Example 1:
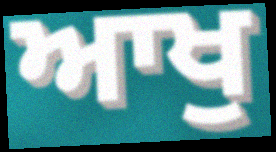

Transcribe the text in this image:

ਆਖੁ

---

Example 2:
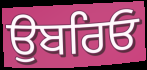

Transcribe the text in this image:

ਉਬਰਿਓ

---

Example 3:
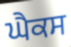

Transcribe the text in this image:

ਘੈਕਸ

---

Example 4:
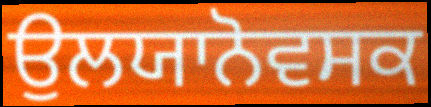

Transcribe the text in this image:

ਉਲਯਾਨੋਵਸਕ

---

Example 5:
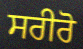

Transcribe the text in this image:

ਸਰੀਰੋ